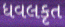
ધવલકૃત